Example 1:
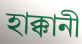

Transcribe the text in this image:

হাক্কানী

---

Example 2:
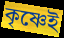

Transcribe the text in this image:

কৃষ্ণেই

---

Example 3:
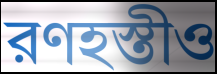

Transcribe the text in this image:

রণহস্তীও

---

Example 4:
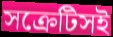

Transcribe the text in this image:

সক্রেটিসই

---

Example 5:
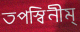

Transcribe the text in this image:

তপস্বিনীম্